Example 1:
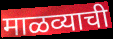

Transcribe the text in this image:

माळव्याची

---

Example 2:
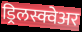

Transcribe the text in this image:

ड्रिलस्क्वेअर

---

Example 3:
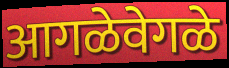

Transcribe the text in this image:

आगळेवेगळे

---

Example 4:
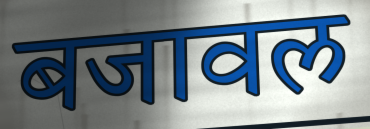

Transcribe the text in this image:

बजावल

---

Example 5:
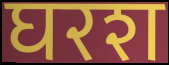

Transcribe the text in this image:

घरश